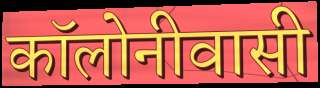
कॉलोनीवासी